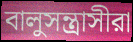
বালুসন্ত্রাসীরা